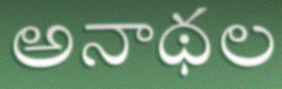
అనాథల